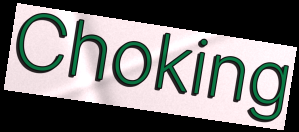
Choking